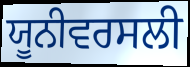
ਯੂਨੀਵਰਸਲੀ